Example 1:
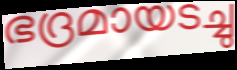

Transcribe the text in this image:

ഭദ്രമായടച്ചു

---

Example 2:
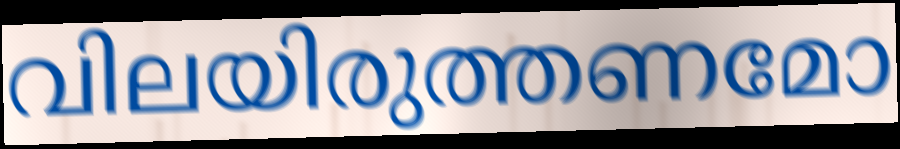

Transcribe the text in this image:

വിലയിരുത്തണമോ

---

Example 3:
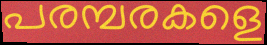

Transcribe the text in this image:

പരമ്പരകളെ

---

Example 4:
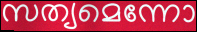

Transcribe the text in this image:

സത്യമെന്നോ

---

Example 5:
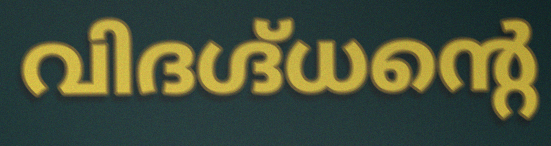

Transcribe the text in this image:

വിദഗ്ദ്ധന്റെ